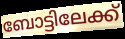
ബോട്ടിലേക്ക്